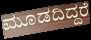
ಮೂಡದಿದ್ದರೆ